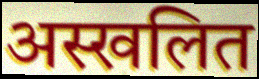
अस्खलित